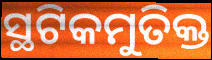
ସ୍ଥଟିକମୁତିକ୍ତ